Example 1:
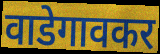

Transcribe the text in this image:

वाडेगावकर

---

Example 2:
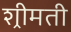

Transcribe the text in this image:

श्रीमती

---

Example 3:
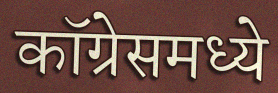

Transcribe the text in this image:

कॉग्रेसमध्ये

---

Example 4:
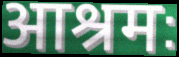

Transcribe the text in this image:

आश्रमः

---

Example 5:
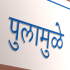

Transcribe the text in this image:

पुलामुळे